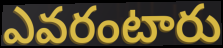
ఎవరంటారు